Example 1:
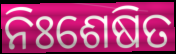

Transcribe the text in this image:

ନିଃଶେଷିତ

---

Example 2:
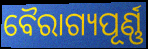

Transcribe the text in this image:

ବୈରାଗ୍ୟପୂର୍ଣ୍ଣ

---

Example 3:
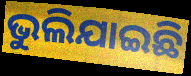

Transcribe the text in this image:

ଭୁଲିଯାଇଛି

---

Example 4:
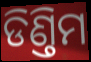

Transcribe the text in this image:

ଡିଣ୍ତିମ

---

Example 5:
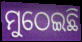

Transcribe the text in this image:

ମୁଠେଇଛି